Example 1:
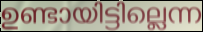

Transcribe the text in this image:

ഉണ്ടായിട്ടില്ലെന്ന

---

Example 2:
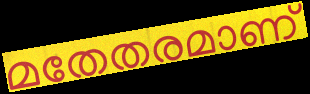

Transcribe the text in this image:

മതേതരമാണ്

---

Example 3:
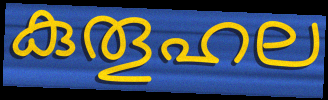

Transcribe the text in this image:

കുതൂഹല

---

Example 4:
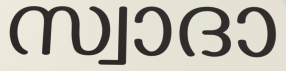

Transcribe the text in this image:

സ്വാദാ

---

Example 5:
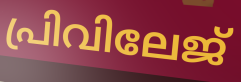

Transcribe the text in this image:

പ്രിവിലേജ്